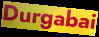
Durgabai